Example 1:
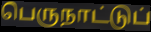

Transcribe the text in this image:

பெருநாட்டுப்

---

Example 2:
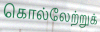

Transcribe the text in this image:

கொல்லேற்றுக்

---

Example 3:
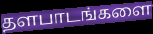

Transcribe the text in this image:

தளபாடங்களை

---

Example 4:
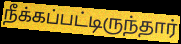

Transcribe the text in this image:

நீக்கப்பட்டிருந்தார்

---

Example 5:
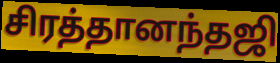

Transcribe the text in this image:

சிரத்தானந்தஜி